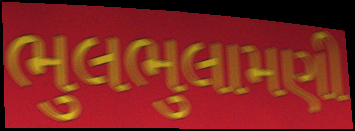
ભુલભુલામણી